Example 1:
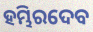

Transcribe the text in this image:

ହମ୍ଭିରଦେବ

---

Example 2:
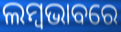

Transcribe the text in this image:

ଲମ୍ବଭାବରେ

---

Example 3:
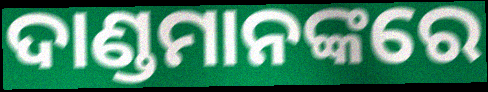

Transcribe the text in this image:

ଦାଣ୍ଡମାନଙ୍କରେ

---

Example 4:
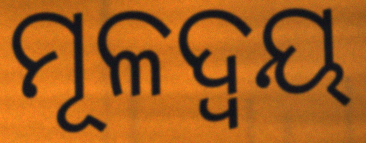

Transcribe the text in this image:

ମୂଳଦ୍ୱୟ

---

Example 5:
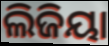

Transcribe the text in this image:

ଲିଜିୟା